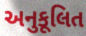
અનુકૂલિત